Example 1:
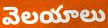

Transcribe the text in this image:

వెలయాలు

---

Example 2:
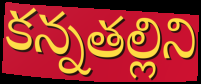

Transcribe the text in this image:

కన్నతల్లిని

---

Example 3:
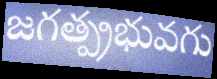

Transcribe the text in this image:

జగత్ప్రభువగు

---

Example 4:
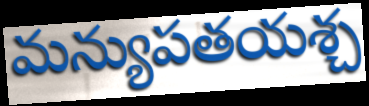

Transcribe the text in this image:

మన్యుపతయశ్చ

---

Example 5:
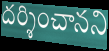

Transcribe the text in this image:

దర్శించానని